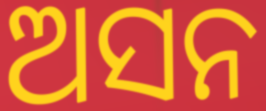
ଅସନ